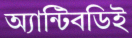
অ্যান্টিবডিই